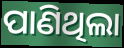
ପାଣିଥିଲା